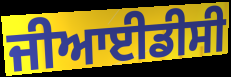
ਜੀਆਈਡੀਸੀ